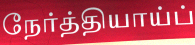
நேர்த்தியாய்ப்